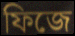
ফিজে